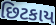
છિટકાય